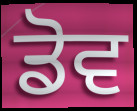
ਡੋਵ